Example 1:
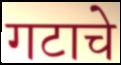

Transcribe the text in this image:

गटाचे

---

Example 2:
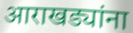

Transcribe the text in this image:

आराखड्यांना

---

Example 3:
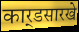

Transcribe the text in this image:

कार्डसारखे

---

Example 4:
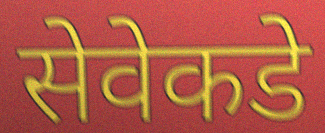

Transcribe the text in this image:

सेवेकडे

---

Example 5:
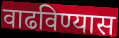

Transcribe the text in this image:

वाढविण्यास